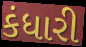
કંધારી